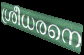
ശ്രീധരനെ